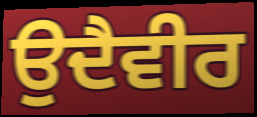
ਉਦੈਵੀਰ